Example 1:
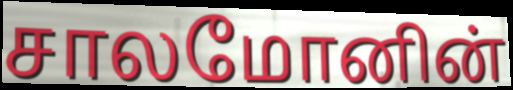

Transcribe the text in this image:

சாலமோனின்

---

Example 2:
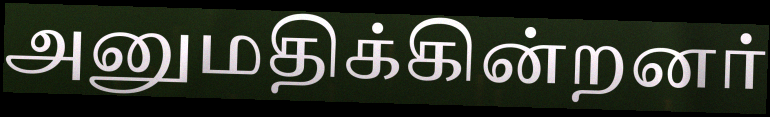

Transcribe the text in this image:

அனுமதிக்கின்றனர்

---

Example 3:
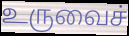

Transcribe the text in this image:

உருவைச்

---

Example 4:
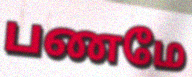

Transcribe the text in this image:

பணமே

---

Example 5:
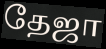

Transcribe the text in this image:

தேஜா